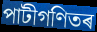
পাটীগণিতৰ